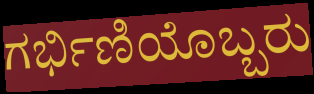
ಗರ್ಭಿಣಿಯೊಬ್ಬರು